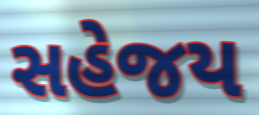
સહેજય